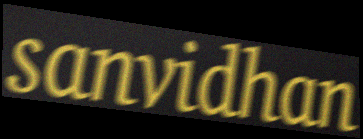
sanvidhan